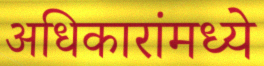
अधिकारांमध्ये